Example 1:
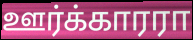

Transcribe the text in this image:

ஊர்க்காரரா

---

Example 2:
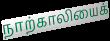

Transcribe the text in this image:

நாற்காலியைக்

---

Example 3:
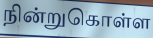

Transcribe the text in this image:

நின்றுகொள்ள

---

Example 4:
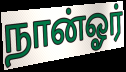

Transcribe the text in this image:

நான்ஓர்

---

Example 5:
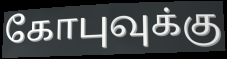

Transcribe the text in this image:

கோபுவுக்கு